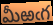
మీఱఁగ